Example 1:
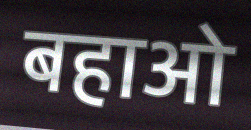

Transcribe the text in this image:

बहाओ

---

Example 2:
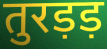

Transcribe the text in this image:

तुरड़ड़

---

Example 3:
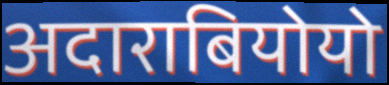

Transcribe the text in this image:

अदाराबियोयो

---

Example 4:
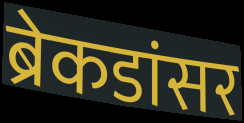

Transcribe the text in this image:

ब्रेकडांसर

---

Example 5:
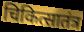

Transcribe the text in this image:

चिकित्सातंत्र